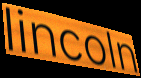
lincoln